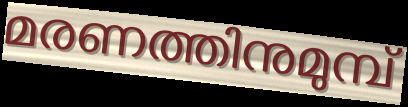
മരണത്തിനുമുമ്പ്